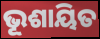
ଭୂଶାୟିତ